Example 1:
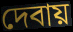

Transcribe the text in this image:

দেবায়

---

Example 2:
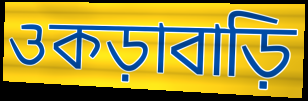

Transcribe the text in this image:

ওকড়াবাড়ি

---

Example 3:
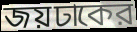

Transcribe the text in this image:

জয়ঢাকের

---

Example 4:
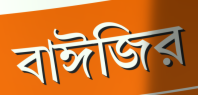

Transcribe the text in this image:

বাঈজির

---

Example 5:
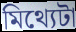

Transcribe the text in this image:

মিথ্যেটা